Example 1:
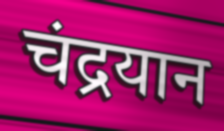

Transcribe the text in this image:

चंद्रयान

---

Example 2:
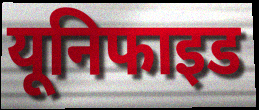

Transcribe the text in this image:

यूनिफाइड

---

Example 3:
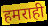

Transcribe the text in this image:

हमराही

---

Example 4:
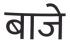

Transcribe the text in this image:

बाजे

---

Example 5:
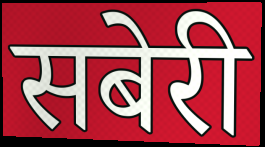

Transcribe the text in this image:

सबेरी